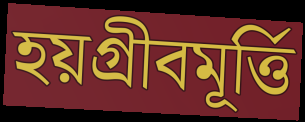
হয়গ্রীবমূর্ত্তি